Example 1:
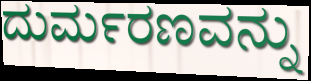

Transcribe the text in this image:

ದುರ್ಮರಣವನ್ನು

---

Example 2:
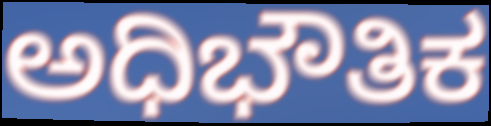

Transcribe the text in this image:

ಅಧಿಭೌತಿಕ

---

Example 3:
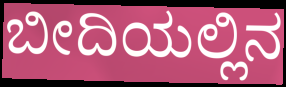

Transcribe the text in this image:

ಬೀದಿಯಲ್ಲಿನ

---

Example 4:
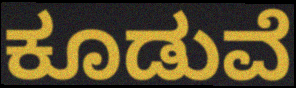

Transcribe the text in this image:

ಕೂಡುವೆ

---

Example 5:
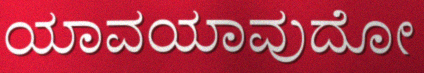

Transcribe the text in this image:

ಯಾವಯಾವುದೋ